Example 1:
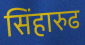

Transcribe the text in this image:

सिंहारुढ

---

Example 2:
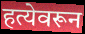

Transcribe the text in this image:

हत्येवरून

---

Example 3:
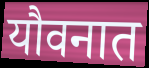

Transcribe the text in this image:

यौवनात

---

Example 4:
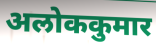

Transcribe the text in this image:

अलोककुमार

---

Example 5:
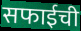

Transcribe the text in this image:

सफाईची